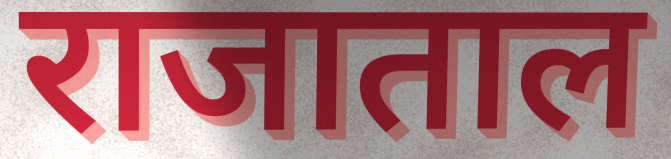
राजाताल